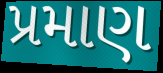
પ્રમાણ